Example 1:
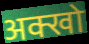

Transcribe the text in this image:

अक्खो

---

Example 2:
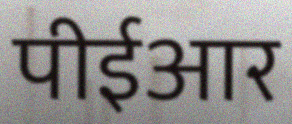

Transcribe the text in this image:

पीईआर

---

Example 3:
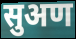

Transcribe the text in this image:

सुअण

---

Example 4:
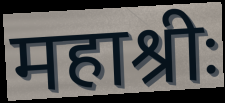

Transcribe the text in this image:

महाश्रीः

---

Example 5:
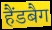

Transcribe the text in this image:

हैंडबैग